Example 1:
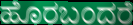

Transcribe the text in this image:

ಹೊರಬಂದರೆ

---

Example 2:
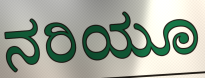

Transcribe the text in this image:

ನರಿಯೂ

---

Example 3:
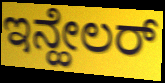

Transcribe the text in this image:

ಇನ್ಹೇಲರ್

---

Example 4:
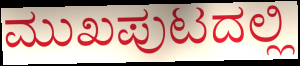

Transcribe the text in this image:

ಮುಖಪುಟದಲ್ಲಿ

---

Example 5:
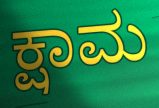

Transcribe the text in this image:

ಕ್ಷಾಮ